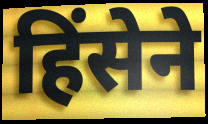
हिंसेने